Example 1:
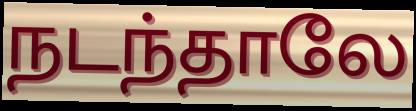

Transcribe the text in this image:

நடந்தாலே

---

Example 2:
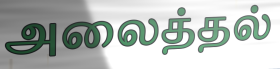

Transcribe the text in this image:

அலைத்தல்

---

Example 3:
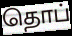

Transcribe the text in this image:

தொப்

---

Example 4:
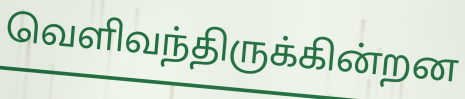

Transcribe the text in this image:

வெளிவந்திருக்கின்றன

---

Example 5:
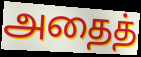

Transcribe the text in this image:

அதைத்